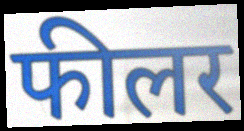
फीलर